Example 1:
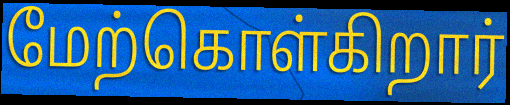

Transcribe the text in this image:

மேற்கொள்கிறார்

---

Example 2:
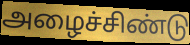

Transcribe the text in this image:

அழைச்சிண்டு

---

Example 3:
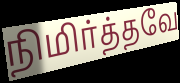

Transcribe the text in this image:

நிமிர்த்தவே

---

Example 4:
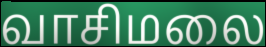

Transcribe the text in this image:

வாசிமலை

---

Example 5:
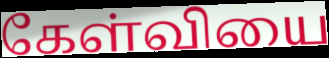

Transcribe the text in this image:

கேள்வியை